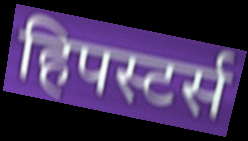
हिपस्टर्स